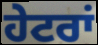
ਹੇਟਰਾਂ